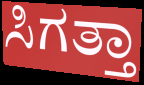
ಸಿಗತ್ತಾ